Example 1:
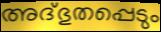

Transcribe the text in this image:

അദ്ഭുതപ്പെടും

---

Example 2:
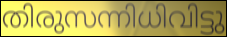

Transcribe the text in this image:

തിരുസന്നിധിവിട്ടു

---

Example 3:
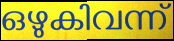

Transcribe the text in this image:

ഒഴുകിവന്ന്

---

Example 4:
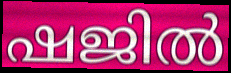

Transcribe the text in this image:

ഷജിൽ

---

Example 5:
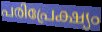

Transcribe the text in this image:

പരിപ്രേക്ഷ്യം